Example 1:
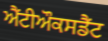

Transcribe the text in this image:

ਐਂਟੀਔਕਸਡੈਂਟ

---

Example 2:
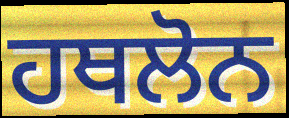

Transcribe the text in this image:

ਹਥਲੋਨ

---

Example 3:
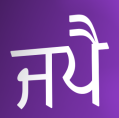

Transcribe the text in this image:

ਜਪੈ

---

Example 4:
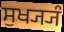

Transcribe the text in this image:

ਸੁਖ੍ਯ੍ਯੰ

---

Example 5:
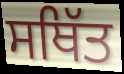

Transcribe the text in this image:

ਸਥਿੱਤ